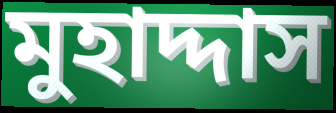
মুহাদ্দাস